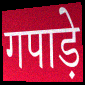
गपाड़े